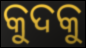
କୁଦକୁ